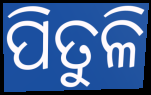
ପିତୁଳି